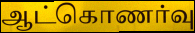
ஆட்கொணர்வு